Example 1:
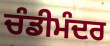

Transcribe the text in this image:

ਚੰਡੀਮੰਦਰ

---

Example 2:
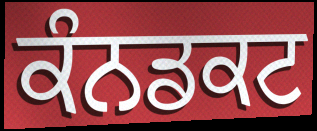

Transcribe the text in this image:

ਕੰਨਡਕਟ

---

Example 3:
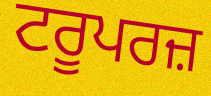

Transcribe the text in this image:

ਟਰੂਪਰਜ਼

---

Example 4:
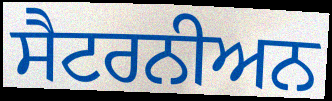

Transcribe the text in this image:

ਸੈਟਰਨੀਅਨ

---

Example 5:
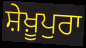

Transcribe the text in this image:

ਸ਼ੇਖ਼ੂਪੁਰਾ